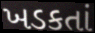
ખડકતાં